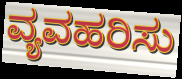
ವ್ಯವಹರಿಸು